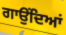
ਗਾਉਂਦਿਆਂ